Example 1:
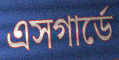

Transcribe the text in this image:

এসগার্ডে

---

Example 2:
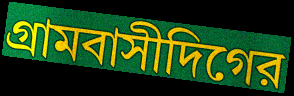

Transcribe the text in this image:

গ্রামবাসীদিগের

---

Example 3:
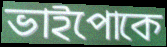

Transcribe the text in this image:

ভাইপোকে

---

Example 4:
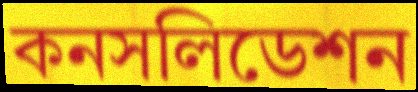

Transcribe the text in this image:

কনসলিডেশন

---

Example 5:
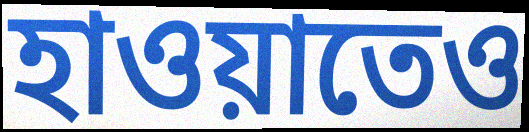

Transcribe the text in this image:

হাওয়াতেও